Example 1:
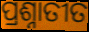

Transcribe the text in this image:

ପ୍ରଶ୍ନାତୀତ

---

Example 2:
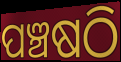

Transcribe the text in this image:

ପଞ୍ଚଷଠି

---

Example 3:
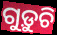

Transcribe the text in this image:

ଗୁଡ଼ୁଚି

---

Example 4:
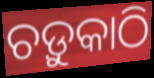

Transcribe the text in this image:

ଚଡ଼ୁକାଠି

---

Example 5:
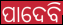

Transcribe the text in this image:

ପାଦେବି